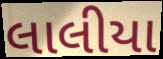
લાલીયા